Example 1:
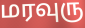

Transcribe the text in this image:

மரவுரு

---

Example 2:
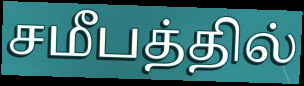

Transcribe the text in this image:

சமீபத்தில்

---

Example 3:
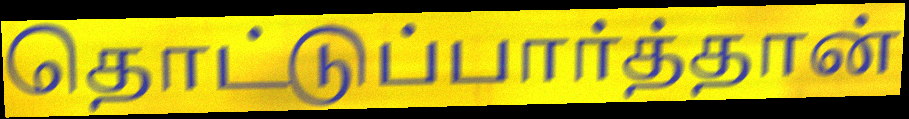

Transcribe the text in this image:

தொட்டுப்பார்த்தான்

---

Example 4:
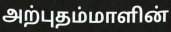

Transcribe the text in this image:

அற்புதம்மாளின்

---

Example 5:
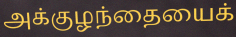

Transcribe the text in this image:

அக்குழந்தையைக்